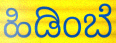
ಹಿಡಿಂಬೆ